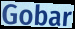
Gobar